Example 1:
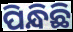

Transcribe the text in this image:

ପିନ୍ଧିଛି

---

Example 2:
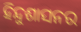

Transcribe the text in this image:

ହିନ୍ଦୁଶାସନର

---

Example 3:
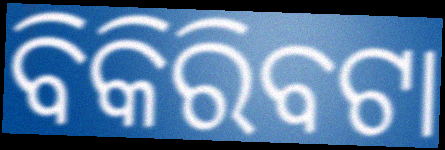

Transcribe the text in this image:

ବିକିରିବଟା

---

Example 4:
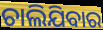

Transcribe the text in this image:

ଚାଲିଯିବାର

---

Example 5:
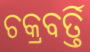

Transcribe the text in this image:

ଚକ୍ରବର୍ତ୍ତି